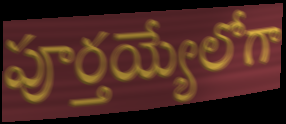
పూర్తయ్యేలోగా